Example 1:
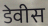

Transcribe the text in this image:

डेवीस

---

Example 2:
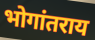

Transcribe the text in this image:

भोगांतराय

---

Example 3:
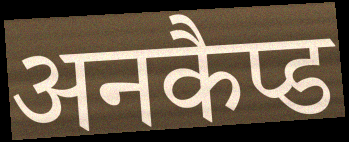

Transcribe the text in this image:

अनकैप्ड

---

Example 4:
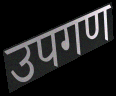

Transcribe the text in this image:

उपगण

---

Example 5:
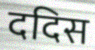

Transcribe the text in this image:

ददिस